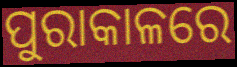
ପୁରାକାଳରେ